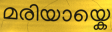
മരിയായ്കെ